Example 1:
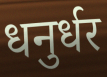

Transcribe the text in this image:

धनुर्धर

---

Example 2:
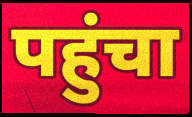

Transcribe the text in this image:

पहुंचा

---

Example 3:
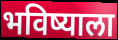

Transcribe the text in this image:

भविष्याला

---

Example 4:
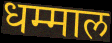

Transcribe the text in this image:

धम्माल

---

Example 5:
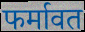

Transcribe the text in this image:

फर्मावत